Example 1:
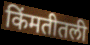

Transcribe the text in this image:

किंमतीतली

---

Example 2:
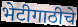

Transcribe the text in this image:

भेटीगाठीचे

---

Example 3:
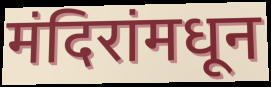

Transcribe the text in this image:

मंदिरांमधून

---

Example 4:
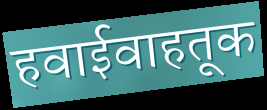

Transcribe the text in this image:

हवाईवाहतूक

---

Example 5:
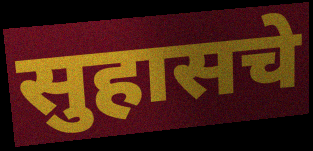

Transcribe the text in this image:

सुहासचे